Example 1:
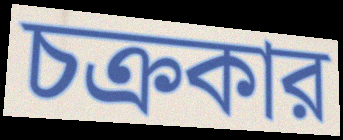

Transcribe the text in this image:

চক্রকার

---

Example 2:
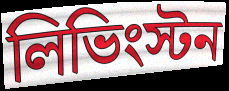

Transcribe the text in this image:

লিভিংস্টন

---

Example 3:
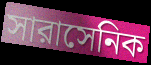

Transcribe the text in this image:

সারাসেনিক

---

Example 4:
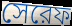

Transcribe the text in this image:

সেরেফ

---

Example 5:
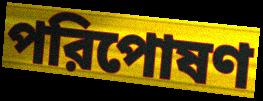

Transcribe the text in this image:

পরিপোষণ